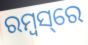
ରମ୍ବସ୍‌ରେ